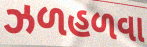
ઝળહળવા